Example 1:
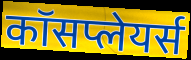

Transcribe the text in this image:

कॉसप्लेयर्स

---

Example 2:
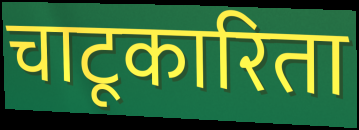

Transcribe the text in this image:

चाटूकारिता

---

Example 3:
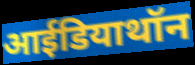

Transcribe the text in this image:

आईडियाथॉन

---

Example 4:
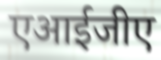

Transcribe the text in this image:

एआईजीए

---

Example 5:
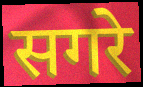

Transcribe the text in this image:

सगरे